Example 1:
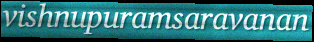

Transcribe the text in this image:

vishnupuramsaravanan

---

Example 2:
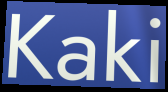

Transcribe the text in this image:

Kaki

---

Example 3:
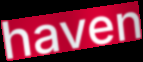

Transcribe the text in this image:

haven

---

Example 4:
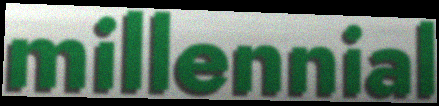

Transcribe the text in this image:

millennial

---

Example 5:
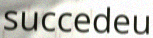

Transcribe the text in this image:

succedeu